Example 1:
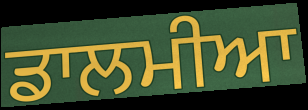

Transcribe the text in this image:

ਡਾਲਮੀਆ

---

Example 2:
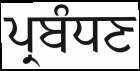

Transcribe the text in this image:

ਪ੍ਰਬੰਧਣ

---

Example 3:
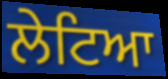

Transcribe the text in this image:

ਲੇਟਿਆ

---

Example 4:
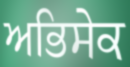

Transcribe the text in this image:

ਅਭਿਸੇਕ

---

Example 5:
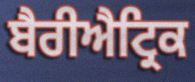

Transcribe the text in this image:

ਬੈਰੀਐਟ੍ਰਿਕ